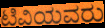
ಟಿವಿಯವರು